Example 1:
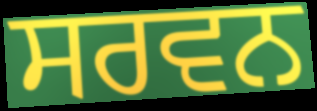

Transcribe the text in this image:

ਸਰਵਨ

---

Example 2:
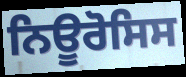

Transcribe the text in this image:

ਨਿਊਰੋਸਿਸ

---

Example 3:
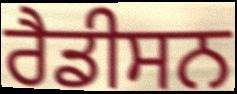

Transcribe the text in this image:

ਰੈਡੀਸਨ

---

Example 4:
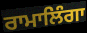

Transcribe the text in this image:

ਰਾਮਾਲਿੰਗਾ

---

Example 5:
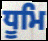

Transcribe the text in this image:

ਧੂਮਿ